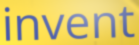
invent